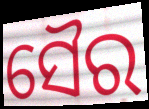
ସୈର